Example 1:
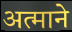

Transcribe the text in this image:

अत्माने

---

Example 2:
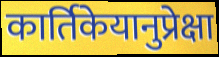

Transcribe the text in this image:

कार्तिकेयानुप्रेक्षा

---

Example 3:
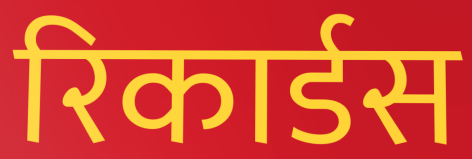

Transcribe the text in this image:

रिकार्डस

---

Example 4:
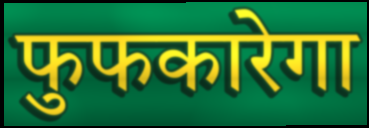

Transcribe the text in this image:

फुफकारेगा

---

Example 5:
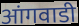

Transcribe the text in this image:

आंगवाडी